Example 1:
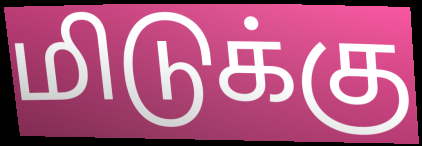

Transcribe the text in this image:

மிடுக்கு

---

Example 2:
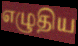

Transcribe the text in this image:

எழுதிய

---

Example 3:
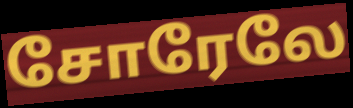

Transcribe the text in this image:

சோரேலே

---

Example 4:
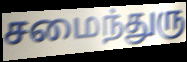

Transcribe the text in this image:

சமைந்துரு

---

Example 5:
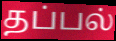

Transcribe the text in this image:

தப்பல்